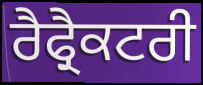
ਰੈਫ੍ਰੈਕਟਰੀ